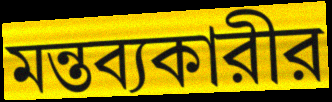
মন্তব্যকারীর